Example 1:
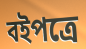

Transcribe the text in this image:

বইপত্রে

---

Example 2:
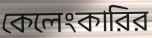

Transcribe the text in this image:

কেলেংকারির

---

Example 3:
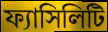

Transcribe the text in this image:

ফ্যাসিলিটি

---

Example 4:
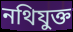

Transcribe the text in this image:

নথিযুক্ত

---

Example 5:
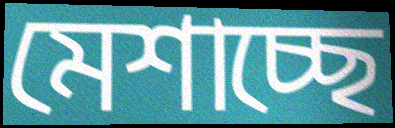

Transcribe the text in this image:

মেশাচ্ছে